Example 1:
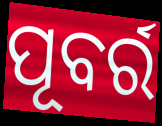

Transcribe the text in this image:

ପୂବର୍ର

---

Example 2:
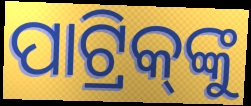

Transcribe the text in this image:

ପାଟ୍ରିକ୍‌ଙ୍କୁ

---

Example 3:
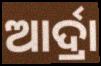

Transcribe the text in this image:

ଆର୍ଦ୍ରା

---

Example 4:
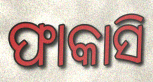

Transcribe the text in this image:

ଫାକାସି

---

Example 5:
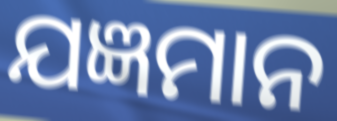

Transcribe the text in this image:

ଯଜ୍ଞମାନ